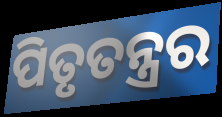
ପିତୃତନ୍ତ୍ରର